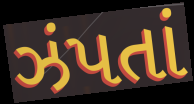
ઝંપતાં